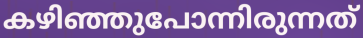
കഴിഞ്ഞുപോന്നിരുന്നത്